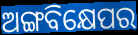
ଅଙ୍ଗବିକ୍ଷେପର